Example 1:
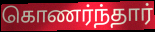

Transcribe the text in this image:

கொணர்ந்தார்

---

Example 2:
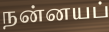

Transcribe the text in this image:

நன்னயப்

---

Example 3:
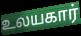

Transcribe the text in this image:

உலயகார்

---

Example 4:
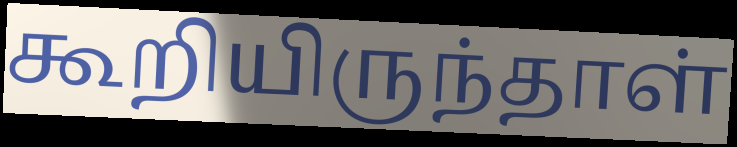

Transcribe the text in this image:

கூறியிருந்தாள்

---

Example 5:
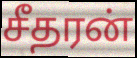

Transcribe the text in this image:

சீதரன்